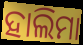
ହାଲିମା